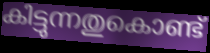
കിട്ടുന്നതുകൊണ്ട്